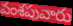
వంశపువారు